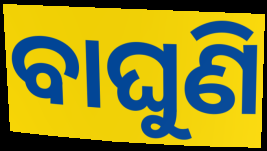
ବାଘୁଣି